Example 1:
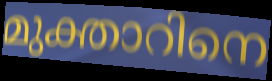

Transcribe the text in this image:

മുക്താറിനെ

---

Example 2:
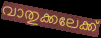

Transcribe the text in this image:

വാതുക്കലേക്ക്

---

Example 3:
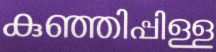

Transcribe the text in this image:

കുഞ്ഞിപ്പിള്ള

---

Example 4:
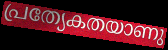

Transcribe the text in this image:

പ്രത്യേകതയാണു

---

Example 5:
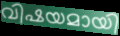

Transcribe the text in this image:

വിഷയമായി